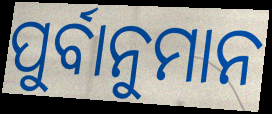
ପୁର୍ବାନୁମାନ